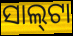
ସାଲ୍‌ଟା